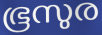
ഭൂസുര